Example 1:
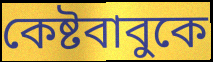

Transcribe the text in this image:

কেষ্টবাবুকে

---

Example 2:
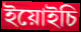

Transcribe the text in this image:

ইয়োইচি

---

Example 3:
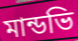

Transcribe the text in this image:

মান্ডভি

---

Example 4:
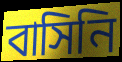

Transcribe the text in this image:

বাসিনি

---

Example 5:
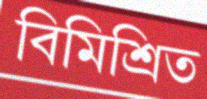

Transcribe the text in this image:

বিমিশ্রিত